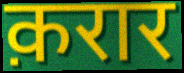
क़रार